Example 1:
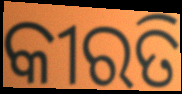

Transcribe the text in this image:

କୀରତି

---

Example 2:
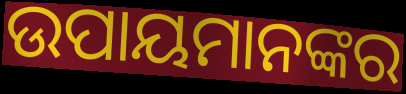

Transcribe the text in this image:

ଉପାୟମାନଙ୍କର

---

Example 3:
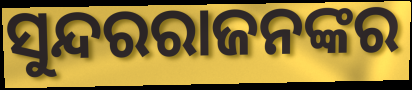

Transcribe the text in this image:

ସୁନ୍ଦରରାଜନଙ୍କର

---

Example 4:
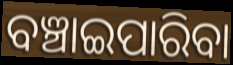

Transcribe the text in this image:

ବଞ୍ଚାଇପାରିବା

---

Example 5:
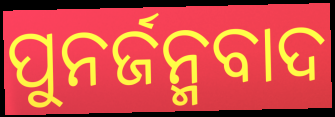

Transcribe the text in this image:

ପୁନର୍ଜନ୍ମବାଦ